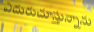
ఎదురుచూస్తున్నాను